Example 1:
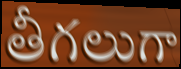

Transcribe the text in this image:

తీగలుగా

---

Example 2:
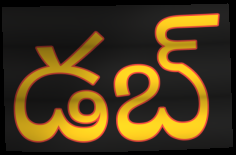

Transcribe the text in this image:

డబ్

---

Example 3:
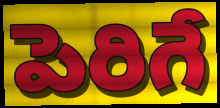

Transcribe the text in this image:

పెరిగే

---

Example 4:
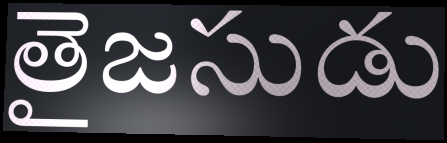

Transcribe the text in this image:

తైజసుడు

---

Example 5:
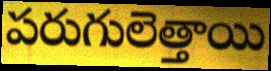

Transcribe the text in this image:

పరుగులెత్తాయి